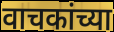
वाचकांच्या